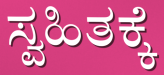
ಸ್ವಹಿತಕ್ಕೆ